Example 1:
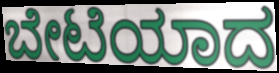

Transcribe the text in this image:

ಬೇಟೆಯಾದ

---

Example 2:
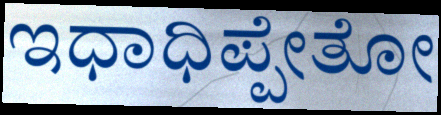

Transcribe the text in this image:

ಇಧಾಧಿಪ್ಪೇತೋ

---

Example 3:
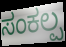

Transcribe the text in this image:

ಸಂಕಲ್ಪ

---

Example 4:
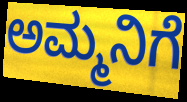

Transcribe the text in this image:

ಅಮ್ಮನಿಗೆ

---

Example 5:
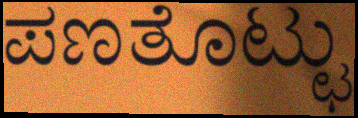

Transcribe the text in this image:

ಪಣತೊಟ್ಟು